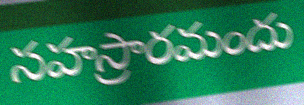
సహస్రారమందు